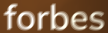
forbes